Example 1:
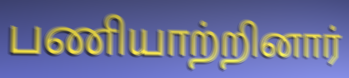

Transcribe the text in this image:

பணியாற்றினார்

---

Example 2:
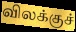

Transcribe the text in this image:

விலக்குச்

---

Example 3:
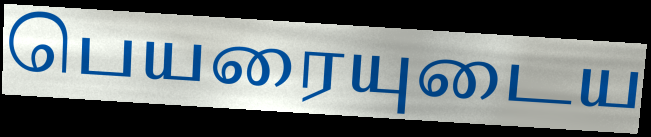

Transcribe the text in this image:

பெயரையுடைய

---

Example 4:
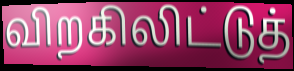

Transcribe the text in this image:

விறகிலிட்டுத்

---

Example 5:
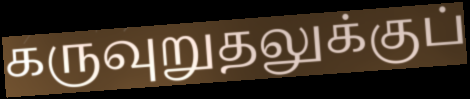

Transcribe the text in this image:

கருவுறுதலுக்குப்